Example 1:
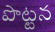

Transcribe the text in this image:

పొట్టన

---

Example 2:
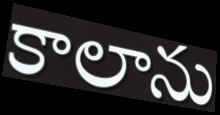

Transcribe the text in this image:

కాలాను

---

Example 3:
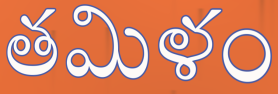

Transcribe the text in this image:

తమిళం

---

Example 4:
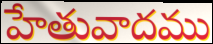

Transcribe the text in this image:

హేతువాదము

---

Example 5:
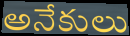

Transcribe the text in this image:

అనేకులు